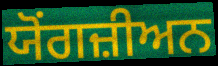
ਯੋਂਗਜ਼ੀਅਨ